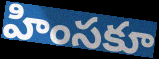
హింసకూ